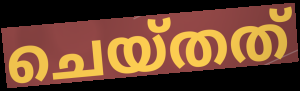
ചെയ്തത്